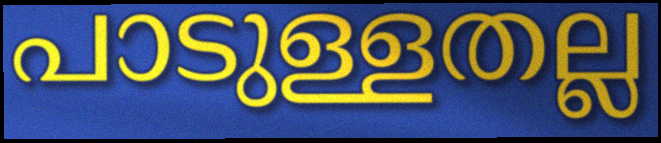
പാടുള്ളതല്ല